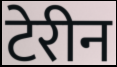
टेरीन